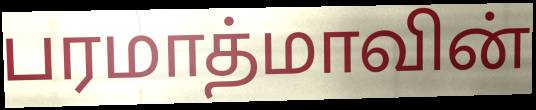
பரமாத்மாவின்